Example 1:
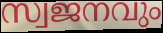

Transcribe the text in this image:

സ്വജനവും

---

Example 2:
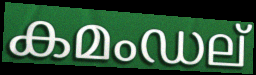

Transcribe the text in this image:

കമംഡല്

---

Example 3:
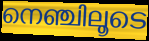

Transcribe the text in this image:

നെഞ്ചിലൂടെ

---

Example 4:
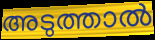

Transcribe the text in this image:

അടുത്താൽ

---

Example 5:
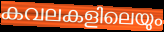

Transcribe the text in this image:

കവലകളിലെയും